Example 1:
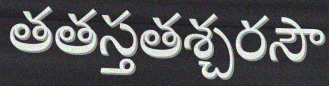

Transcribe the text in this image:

తతస్తతశ్చరసౌ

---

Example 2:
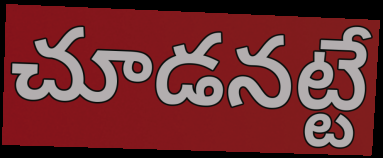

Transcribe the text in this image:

చూడనట్టే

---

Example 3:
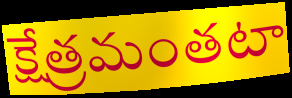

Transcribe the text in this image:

క్షేత్రమంతటా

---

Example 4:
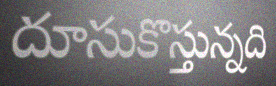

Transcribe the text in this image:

దూసుకొస్తున్నది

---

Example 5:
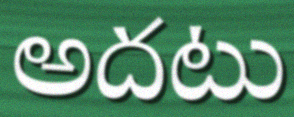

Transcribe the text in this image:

అదటు